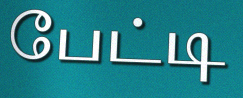
பேட்டி